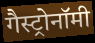
गैस्ट्रोनॉमी